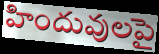
హిందువులపై